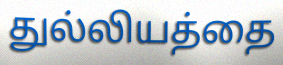
துல்லியத்தை